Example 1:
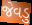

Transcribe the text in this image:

જેવડુ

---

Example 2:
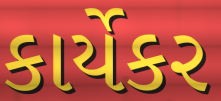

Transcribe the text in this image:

કાર્યેકર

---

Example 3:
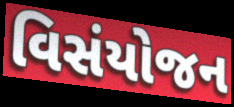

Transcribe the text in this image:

વિસંયોજન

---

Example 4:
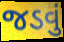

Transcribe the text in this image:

જડવું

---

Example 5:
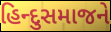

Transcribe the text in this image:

હિન્દુસમાજને